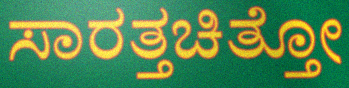
ಸಾರತ್ತಚಿತ್ತೋ